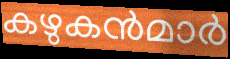
കഴുകൻമാർ